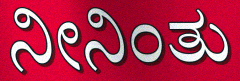
ನೀನಿಂತು